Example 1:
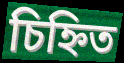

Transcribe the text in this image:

চিহ্নিত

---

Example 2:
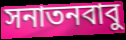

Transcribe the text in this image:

সনাতনবাবু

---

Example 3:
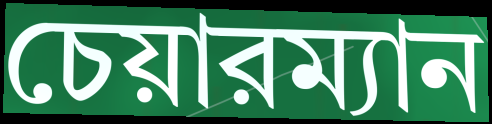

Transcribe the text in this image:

চেয়ারম্যান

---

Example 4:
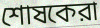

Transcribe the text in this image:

শোষকেরা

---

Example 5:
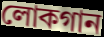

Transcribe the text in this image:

লোকগান